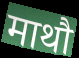
माथौ